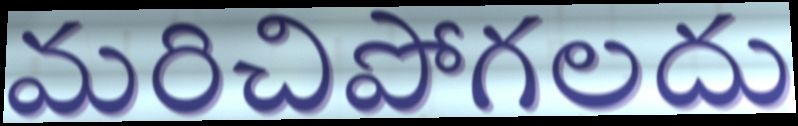
మరిచిపోగలదు